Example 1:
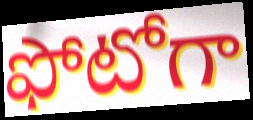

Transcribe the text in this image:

ఫోటోగా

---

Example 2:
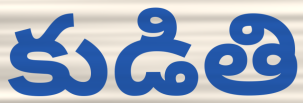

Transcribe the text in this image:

కుడితి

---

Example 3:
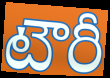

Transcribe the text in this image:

టౌరీ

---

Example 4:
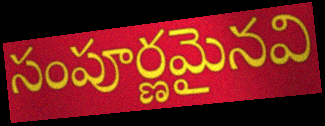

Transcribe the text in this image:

సంపూర్ణమైనవి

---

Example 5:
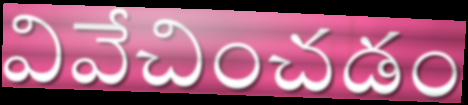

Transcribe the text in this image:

వివేచించడం